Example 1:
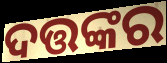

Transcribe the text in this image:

ଦତ୍ତଙ୍କର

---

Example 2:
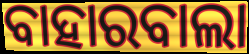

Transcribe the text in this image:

ବାହାରବାଲା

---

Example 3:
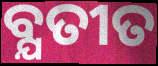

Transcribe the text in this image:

ବ୍ଯତୀତ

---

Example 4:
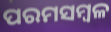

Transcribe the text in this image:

ପରମସମ୍ବଳ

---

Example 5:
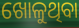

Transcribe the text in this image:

ଖୋଳୁଥିବା